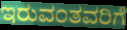
ಇರುವಂತವರಿಗೆ